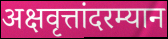
अक्षवृत्तांदरम्यान